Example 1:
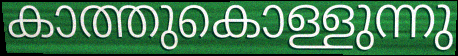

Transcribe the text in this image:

കാത്തുകൊള്ളുന്നു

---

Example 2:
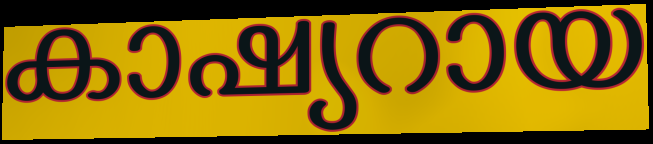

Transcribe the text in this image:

കാഷ്യറായ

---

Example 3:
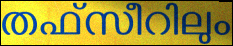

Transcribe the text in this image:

തഫ്സീറിലും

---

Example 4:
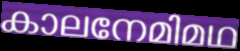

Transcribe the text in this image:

കാലനേമിമഥ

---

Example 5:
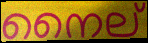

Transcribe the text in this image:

നൈല്